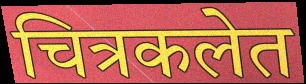
चित्रकलेत